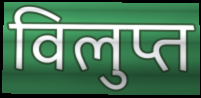
विलुप्त